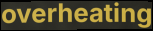
overheating